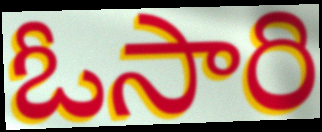
ఓసారి